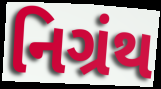
નિગ્રંથ